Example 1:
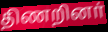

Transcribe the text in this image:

திணறினர்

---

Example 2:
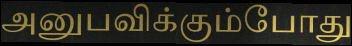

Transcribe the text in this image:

அனுபவிக்கும்போது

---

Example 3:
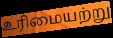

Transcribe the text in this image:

உரிமையற்று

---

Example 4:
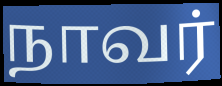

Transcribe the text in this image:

நாவர்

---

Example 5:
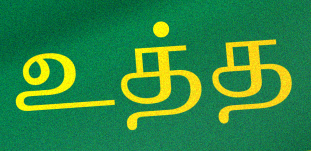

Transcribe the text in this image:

உத்த